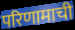
परिणामाची